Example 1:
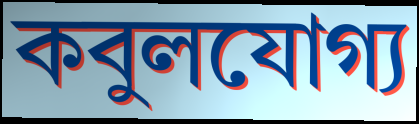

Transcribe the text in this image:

কবুলযোগ্য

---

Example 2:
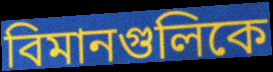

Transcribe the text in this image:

বিমানগুলিকে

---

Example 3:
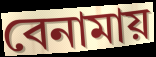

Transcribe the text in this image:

বেনামায়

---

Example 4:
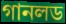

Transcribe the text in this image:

গানলড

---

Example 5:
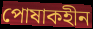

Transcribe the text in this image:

পোষাকহীন